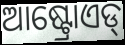
ଆଷ୍ଟ୍ରୋଏଡ୍